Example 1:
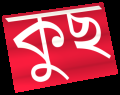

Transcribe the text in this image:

কুছ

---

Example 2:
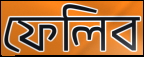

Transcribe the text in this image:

ফেলিব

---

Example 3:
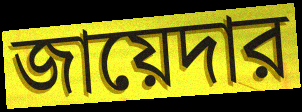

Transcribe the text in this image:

জায়েদার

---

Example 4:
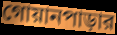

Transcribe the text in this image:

গোয়ানপাড়ার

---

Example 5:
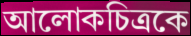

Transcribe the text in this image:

আলোকচিত্রকে